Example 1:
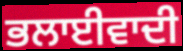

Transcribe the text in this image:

ਭਲਾਈਵਾਦੀ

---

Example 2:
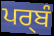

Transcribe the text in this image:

ਪਰ੍ਬੰ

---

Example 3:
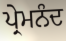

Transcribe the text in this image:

ਪ੍ਰੇਮਨੰਦ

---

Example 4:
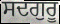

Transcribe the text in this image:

ਸਦਗੁਰੂ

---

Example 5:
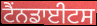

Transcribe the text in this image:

ਟੈਂਨਡਾਈਟਸ